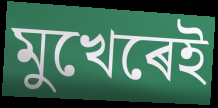
মুখেৰেই